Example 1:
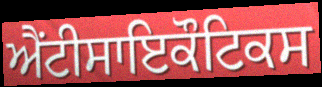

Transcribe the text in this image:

ਐਂਟੀਸਾਇਕੌਟਿਕਸ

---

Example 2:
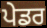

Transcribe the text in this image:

ਪੇਡਰ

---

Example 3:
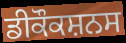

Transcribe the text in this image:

ਡੀਕੌਕਸ਼ਨਸ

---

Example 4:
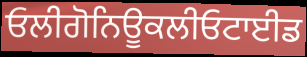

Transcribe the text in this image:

ਓਲੀਗੋਨਿਊਕਲੀਓਟਾਈਡ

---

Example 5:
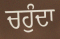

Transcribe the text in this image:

ਚਹੁੰਦਾ